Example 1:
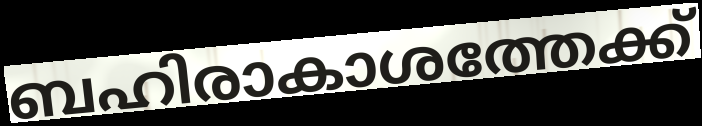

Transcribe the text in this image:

ബഹിരാകാശത്തേക്ക്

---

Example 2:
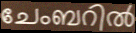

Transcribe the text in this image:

ചേംബറിൽ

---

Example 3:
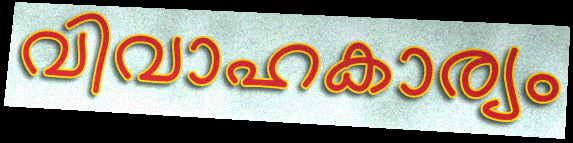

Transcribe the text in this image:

വിവാഹകാര്യം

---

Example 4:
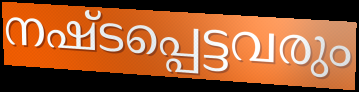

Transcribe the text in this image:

നഷ്ടപ്പെട്ടവരും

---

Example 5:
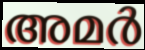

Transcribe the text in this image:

അമർ